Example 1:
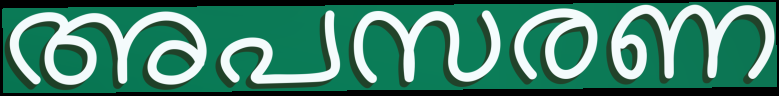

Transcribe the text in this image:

അപസരണ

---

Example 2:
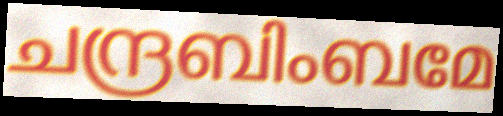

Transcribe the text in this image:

ചന്ദ്രബിംബമേ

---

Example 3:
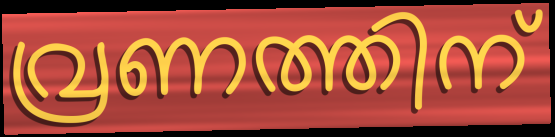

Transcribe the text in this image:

വ്രണത്തിന്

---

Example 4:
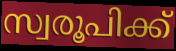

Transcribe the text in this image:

സ്വരൂപിക്ക്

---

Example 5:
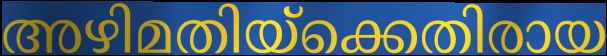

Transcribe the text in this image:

അഴിമതിയ്ക്കെതിരായ